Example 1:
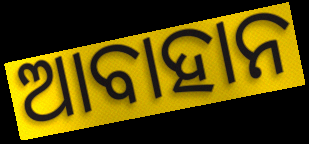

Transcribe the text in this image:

ଆବାହାନ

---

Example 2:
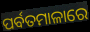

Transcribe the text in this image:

ପର୍ବତମାଳାରେ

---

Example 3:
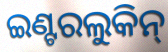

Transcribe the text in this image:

ଇଣ୍ଟରଲୁକିନ୍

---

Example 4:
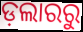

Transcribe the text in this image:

ଡ଼ଲାରରୁ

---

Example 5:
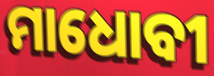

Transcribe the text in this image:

ମାଧୋବୀ